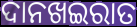
ଦାନଖଇରାତ